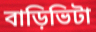
বাড়িভিটা